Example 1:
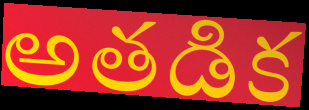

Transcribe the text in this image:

అతడిక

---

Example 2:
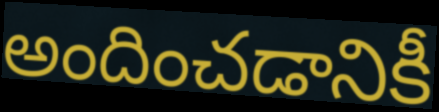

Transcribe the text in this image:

అందించడానికీ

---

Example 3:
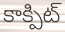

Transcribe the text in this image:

కాక్పిట్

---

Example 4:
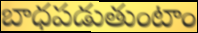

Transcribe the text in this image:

బాధపడుతుంటాం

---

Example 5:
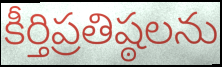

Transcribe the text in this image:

కీర్తిప్రతిష్ఠలను